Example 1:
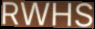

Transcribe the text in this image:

RWHS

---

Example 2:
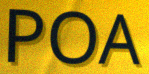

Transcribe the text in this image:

POA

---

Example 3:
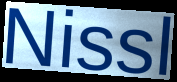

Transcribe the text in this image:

Nissl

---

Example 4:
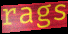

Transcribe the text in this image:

rags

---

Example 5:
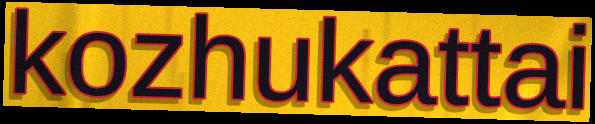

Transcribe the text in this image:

kozhukattai